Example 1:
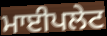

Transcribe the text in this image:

ਮਾਈਪਲੇਟ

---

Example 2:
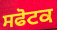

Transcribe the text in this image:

ਸਫੋਟਕ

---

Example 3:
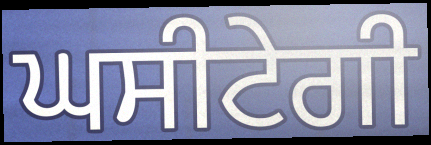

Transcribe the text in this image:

ਘਸੀਟੇਗੀ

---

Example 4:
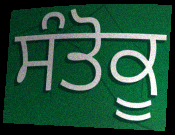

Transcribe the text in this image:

ਸੰਤੋਕੂ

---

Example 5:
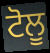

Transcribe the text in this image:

ਟੋਲੂ